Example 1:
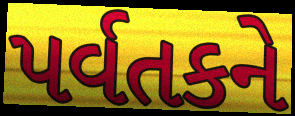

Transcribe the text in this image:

પર્વતકને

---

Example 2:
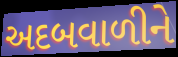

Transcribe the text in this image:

અદબવાળીને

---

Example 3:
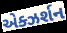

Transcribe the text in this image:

એક્ઝર્શન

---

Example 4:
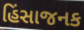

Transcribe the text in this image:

હિંસાજનક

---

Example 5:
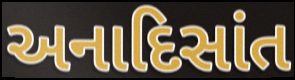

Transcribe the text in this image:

અનાદિસાંત